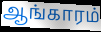
ஆங்காரம்